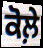
ਕੋਲ਼ੇ